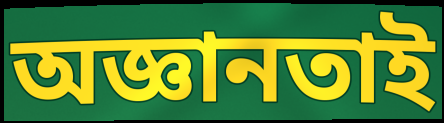
অজ্ঞানতাই